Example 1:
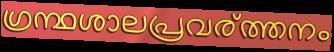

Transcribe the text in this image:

ഗ്രന്ഥശാലപ്രവര്ത്തനം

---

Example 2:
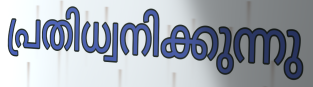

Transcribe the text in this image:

പ്രതിധ്വനിക്കുന്നു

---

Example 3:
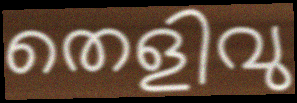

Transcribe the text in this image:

തെളിവു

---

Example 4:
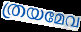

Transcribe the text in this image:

ത്രയമേവ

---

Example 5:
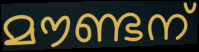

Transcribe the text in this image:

മൗണ്ടന്